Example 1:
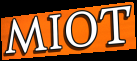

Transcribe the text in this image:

MIOT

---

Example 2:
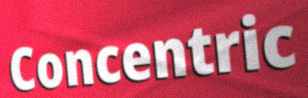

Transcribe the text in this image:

Concentric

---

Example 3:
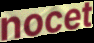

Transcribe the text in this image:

nocet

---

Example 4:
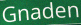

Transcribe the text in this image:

Gnaden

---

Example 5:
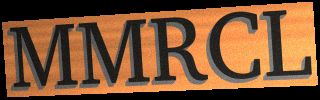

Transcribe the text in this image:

MMRCL